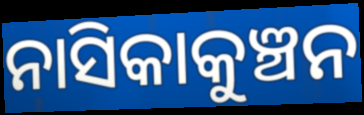
ନାସିକାକୁଞ୍ଚନ